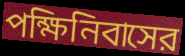
পক্ষিনিবাসের